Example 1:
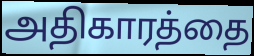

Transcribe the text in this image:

அதிகாரத்தை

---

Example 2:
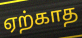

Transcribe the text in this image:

ஏற்காத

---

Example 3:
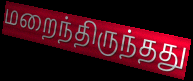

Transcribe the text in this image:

மறைந்திருந்தது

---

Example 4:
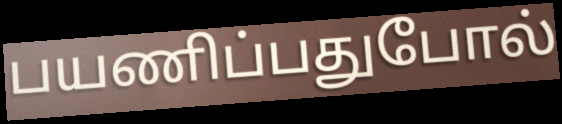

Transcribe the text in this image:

பயணிப்பதுபோல்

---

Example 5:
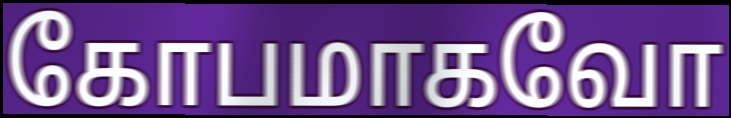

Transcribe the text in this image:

கோபமாகவோ